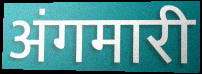
अंगमारी